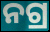
ନଗ୍ର